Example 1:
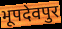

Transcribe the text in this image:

भूपदेवपुर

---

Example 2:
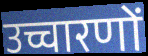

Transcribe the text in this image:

उच्चारणों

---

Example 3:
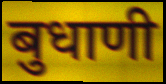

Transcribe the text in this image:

बुधाणी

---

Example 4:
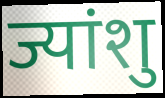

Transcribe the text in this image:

ज्यांशु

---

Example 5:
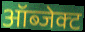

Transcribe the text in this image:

ऑब्‍जेक्‍ट